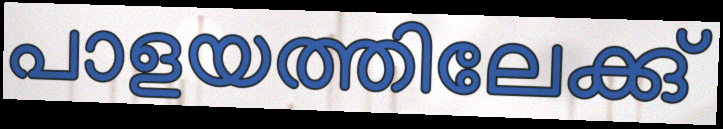
പാളയത്തിലേക്കു്